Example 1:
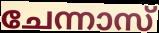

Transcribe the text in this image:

ചേന്നാസ്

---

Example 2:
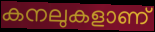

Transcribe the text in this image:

കനലുകളാണ്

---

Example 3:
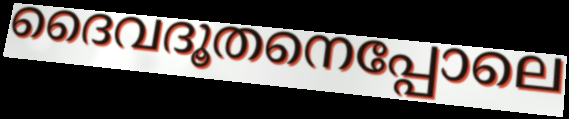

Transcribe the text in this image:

ദൈവദൂതനെപ്പോലെ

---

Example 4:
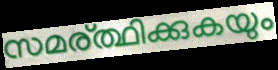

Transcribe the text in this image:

സമര്ത്ഥിക്കുകയും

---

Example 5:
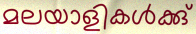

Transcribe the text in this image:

മലയാളികൾക്കു്